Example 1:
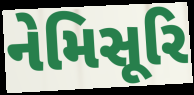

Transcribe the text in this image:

નેમિસૂરિ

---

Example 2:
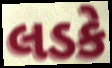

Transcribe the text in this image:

લડકે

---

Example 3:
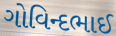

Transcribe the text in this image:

ગોવિન્દભાઈ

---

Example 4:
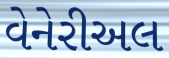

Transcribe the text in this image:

વેનેરીઅલ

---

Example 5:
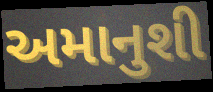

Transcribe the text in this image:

અમાનુશી